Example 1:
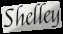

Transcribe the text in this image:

Shelley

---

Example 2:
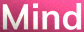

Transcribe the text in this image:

Mind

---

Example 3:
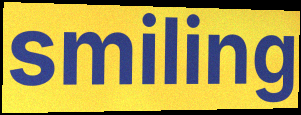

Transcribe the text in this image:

smiling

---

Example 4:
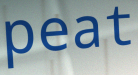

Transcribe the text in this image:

peat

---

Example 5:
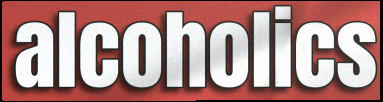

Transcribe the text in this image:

alcoholics